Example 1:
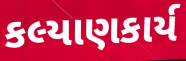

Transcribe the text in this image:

કલ્યાણકાર્ય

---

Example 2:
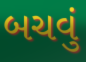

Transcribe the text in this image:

બચવું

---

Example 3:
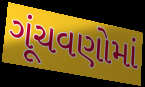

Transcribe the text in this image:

ગૂંચવણોમાં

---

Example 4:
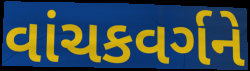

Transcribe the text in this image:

વાંચકવર્ગને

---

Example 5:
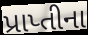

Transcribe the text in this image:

પ્રાપ્તીના